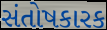
સંતોષકારક